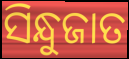
ସିନ୍ଧୁଜାତ